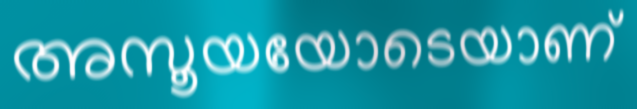
അസൂയയോടെയാണ്